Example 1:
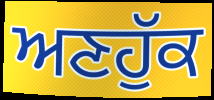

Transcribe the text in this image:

ਅਣਹੁੱਕ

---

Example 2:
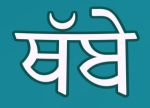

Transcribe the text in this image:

ਥੱਬੇ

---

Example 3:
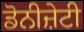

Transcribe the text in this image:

ਡੋਨੀਜ਼ੇਟੀ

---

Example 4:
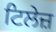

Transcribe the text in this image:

ਟਿਲੇਜ਼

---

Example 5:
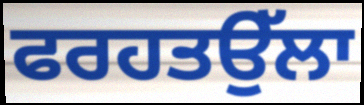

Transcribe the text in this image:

ਫਰਹਤਉੱਲਾ